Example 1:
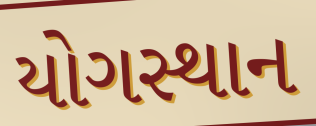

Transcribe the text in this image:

યોગસ્થાન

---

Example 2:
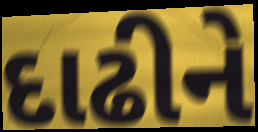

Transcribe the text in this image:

દાઢીને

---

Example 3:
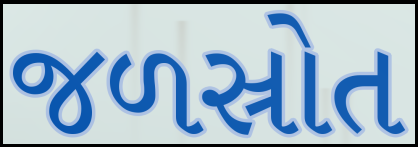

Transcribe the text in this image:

જળસ્રોત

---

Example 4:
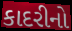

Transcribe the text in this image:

કાદરીનો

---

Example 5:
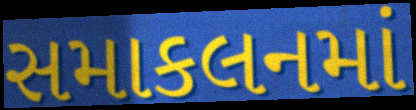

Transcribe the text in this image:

સમાકલનમાં